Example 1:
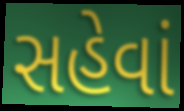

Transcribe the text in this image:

સહેવાં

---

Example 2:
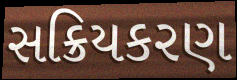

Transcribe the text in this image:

સક્રિયકરણ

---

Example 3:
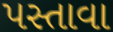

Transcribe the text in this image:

પસ્તાવા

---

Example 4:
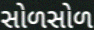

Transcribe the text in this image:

સોળસોળ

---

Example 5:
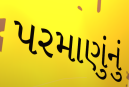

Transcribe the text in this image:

પરમાણુંનું